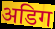
अडिग